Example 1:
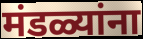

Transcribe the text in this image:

मंडळ्यांना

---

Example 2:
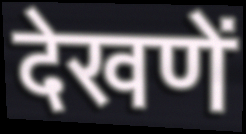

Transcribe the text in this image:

देखणें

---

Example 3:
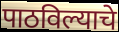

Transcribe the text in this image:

पाठविल्याचे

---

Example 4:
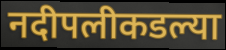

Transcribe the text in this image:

नदीपलीकडल्या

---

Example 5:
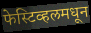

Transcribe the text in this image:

फेस्टिव्हलमधून